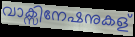
വാക്സിനേഷനുകള്